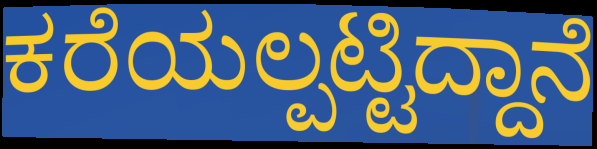
ಕರೆಯಲ್ಪಟ್ಟಿದ್ದಾನೆ